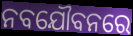
ନବଯୌବନରେ